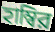
হাম্বির